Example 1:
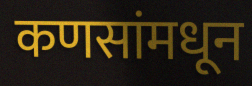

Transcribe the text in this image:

कणसांमधून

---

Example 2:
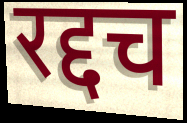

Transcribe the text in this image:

रद्दच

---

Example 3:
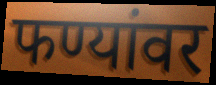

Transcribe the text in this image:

फण्यांवर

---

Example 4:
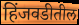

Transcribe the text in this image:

हिंजवडीतील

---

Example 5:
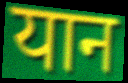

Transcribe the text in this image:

यान